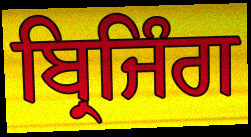
ਬ੍ਰਿਜਿੰਗ